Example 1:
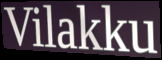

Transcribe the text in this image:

Vilakku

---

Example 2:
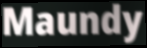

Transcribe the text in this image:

Maundy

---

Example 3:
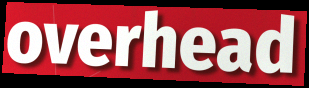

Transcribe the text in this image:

overhead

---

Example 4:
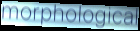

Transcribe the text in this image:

morphological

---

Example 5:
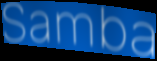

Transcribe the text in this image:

Samba